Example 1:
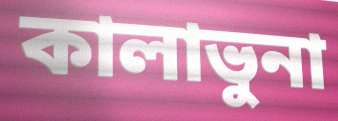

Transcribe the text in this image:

কালাভুনা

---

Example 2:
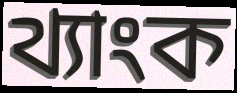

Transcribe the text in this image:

থ্যাংক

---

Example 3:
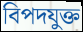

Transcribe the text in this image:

বিপদযুক্ত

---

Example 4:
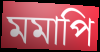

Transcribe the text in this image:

মমাপি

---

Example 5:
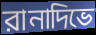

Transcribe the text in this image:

রানাদিভে